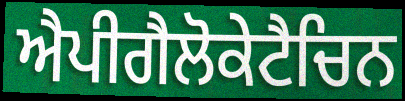
ਐਪੀਗੈਲੋਕੇਟੈਚਿਨ